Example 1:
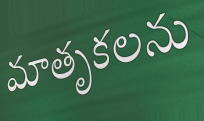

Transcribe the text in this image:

మాతృకలను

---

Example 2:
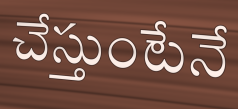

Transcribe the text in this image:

చేస్తుంటేనే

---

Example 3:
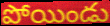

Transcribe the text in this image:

పోయిండు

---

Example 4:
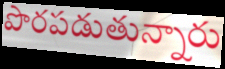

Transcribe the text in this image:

పొరపడుతున్నారు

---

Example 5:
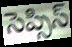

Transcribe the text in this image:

సెప్సిస్